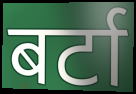
बर्टा